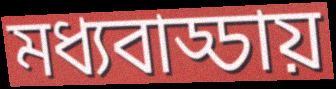
মধ্যবাড্ডায়